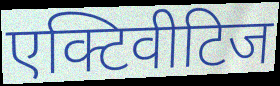
एक्टिवीटिज